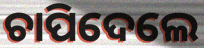
ଚାପିଦେଲେ